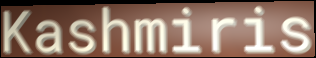
Kashmiris